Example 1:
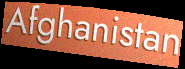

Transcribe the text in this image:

Afghanistan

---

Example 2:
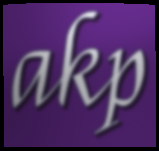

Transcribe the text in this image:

akp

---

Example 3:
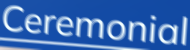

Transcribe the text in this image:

Ceremonial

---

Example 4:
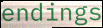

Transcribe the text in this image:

endings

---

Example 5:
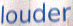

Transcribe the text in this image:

louder